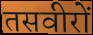
तसवीरों